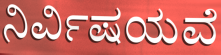
ನಿರ್ವಿಷಯವೆ